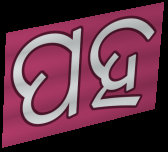
ପହ